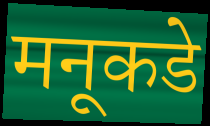
मनूकडे